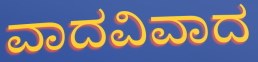
ವಾದವಿವಾದ